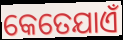
କେତେଯାଏଁ